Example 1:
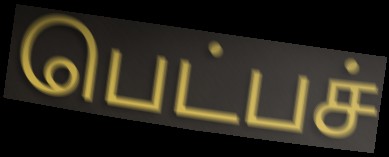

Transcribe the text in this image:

பெட்பச்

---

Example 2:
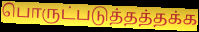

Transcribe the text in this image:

பொருட்படுத்தத்தக்க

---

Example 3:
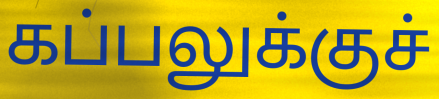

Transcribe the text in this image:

கப்பலுக்குச்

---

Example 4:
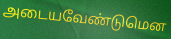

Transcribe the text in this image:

அடையவேண்டுமென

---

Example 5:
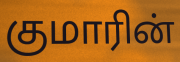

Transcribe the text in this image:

குமாரின்